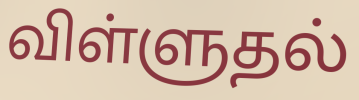
விள்ளுதல்